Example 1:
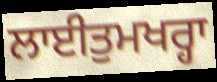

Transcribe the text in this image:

ਲਾਈਤੁਮਖਰ੍ਹਾ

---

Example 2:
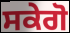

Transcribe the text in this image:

ਸਕੇਗੋ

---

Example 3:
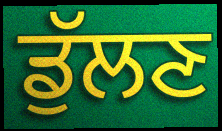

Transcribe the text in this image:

ਡੁੱਲਣ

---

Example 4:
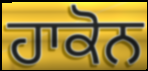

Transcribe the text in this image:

ਹਾਕੋਨ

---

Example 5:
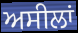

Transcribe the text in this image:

ਅਸੀਲਾਂ